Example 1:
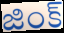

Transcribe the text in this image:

జింక్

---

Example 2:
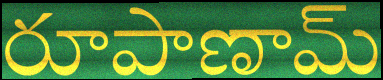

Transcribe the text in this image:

రూపాణామ్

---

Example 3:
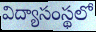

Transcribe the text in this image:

విద్యాసంస్థలో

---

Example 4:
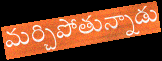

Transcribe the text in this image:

మర్చిపోతున్నాడు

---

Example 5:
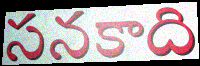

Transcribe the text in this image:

సనకాది